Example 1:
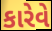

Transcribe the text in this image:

કારેવે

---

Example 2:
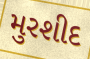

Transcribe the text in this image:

મુરશીદ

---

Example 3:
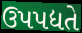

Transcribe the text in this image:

ઉપપદ્યતે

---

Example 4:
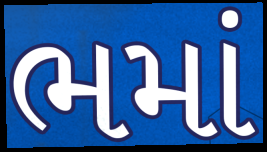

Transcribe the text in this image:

ભમાં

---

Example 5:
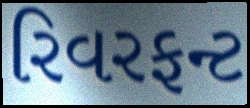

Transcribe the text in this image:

રિવરફન્ટ